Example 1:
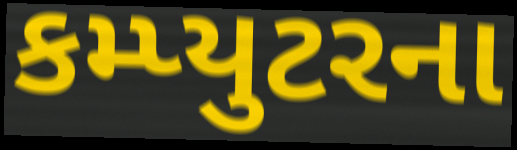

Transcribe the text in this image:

કમ્પ્યુટરના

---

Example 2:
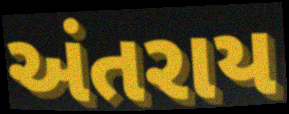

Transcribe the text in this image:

અંતરાય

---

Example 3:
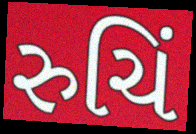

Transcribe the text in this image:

રુચિં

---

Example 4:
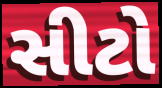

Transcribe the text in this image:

સીટો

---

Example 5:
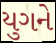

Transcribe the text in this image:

યુગને